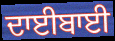
ਦਾਈਬਾਈ